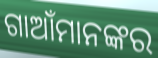
ଗାଆଁମାନଙ୍କର